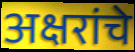
अक्षरांचे